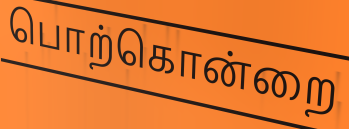
பொற்கொன்றை